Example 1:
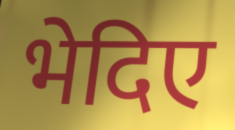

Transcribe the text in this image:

भेदिए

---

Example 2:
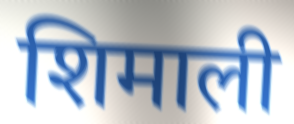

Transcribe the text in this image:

शिमाली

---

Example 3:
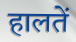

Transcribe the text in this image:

हालतें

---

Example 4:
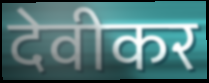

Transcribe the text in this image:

देवीकर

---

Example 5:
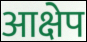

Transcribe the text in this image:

आक्षेप